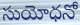
సుయోధనో